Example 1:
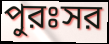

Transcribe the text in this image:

পুরঃসর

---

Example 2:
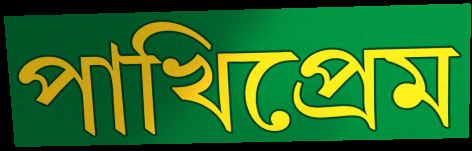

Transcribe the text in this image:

পাখিপ্রেম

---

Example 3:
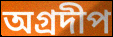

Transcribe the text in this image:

অগ্রদীপ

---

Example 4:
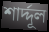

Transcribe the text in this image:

শার্দ্দূল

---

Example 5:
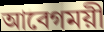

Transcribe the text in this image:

আবেগময়ী